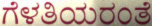
ಗೆಳತಿಯರಂತೆ